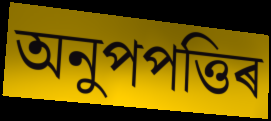
অনুপপত্তিৰ